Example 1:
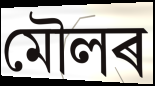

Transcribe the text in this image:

মৌলৰ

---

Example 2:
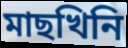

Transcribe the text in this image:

মাছখিনি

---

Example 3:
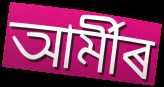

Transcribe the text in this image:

আৰ্মীৰ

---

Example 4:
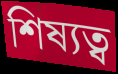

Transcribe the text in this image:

শিষ্যত্ব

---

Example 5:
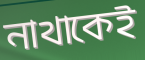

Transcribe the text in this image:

নাথাকেই